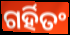
ଗର୍ହିତଂ